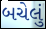
બચેલું